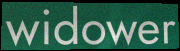
widower